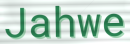
Jahwe